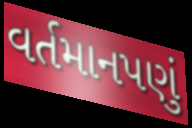
વર્તમાનપણું